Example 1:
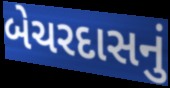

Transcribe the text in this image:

બેચરદાસનું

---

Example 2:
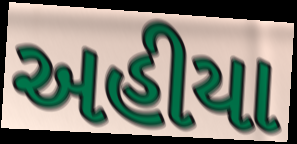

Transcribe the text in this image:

અહીયા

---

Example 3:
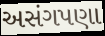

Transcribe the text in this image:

અસંગપણા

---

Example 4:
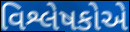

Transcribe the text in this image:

વિશ્લેષકોએ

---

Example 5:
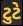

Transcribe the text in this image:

ટુટે